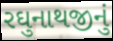
રઘુનાથજીનું